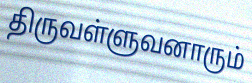
திருவள்ளுவனாரும்